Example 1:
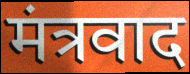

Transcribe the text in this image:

मंत्रवाद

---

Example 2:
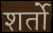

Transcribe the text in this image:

शर्तो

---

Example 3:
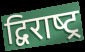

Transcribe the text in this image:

द्विराष्ट्र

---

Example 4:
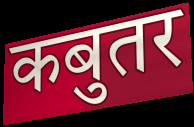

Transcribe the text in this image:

कबुतर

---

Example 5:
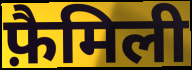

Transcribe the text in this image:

फ़ैमिली